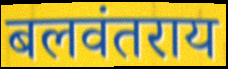
बलवंतराय